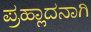
ಪ್ರಹ್ಲಾದನಾಗಿ